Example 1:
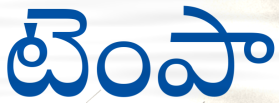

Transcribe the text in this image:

టెంపా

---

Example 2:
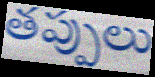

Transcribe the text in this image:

తప్పులు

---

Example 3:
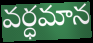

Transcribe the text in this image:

వర్ధమాన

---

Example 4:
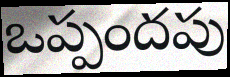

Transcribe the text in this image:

ఒప్పందపు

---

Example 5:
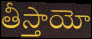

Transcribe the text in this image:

తీస్తాయో